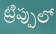
ట్రిప్పులో